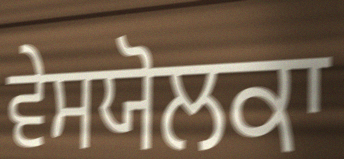
ਵੇਸਯੋਲਕਾ